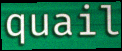
quail